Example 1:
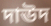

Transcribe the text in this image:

দাঊদ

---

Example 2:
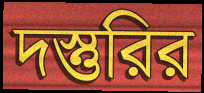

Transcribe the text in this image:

দস্তুরির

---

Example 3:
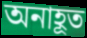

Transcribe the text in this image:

অনাহূত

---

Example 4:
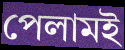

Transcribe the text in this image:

পেলামই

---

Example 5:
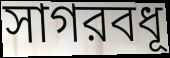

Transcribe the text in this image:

সাগরবধূ